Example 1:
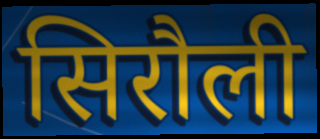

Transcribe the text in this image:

सिरौली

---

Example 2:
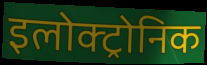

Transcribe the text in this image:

इलोक्ट्रोनिक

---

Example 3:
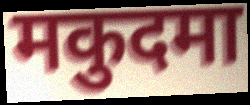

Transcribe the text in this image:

मकुदमा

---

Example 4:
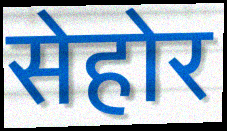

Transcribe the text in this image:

सेहोर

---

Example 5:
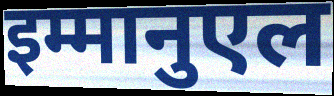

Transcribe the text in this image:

इम्मानुएल